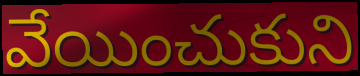
వేయించుకుని